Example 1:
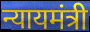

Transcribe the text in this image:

न्यायमंत्री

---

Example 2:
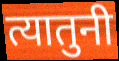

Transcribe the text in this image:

त्यातुनी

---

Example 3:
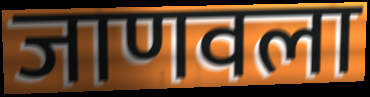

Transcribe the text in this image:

जाणवला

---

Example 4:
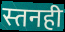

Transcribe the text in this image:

स्तनही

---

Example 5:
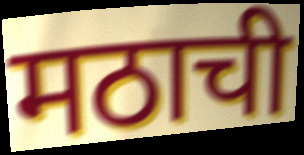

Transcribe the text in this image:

मठाची